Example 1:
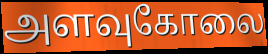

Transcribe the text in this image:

அளவுகோலை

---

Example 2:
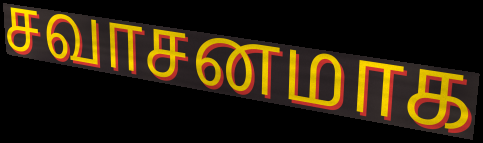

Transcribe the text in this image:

சவாசனமாக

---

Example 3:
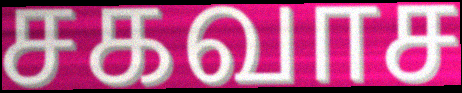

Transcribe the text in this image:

சகவாச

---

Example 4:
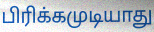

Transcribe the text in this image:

பிரிக்கமுடியாது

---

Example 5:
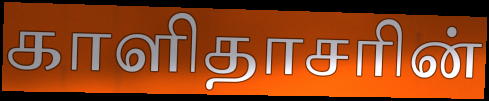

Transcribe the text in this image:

காளிதாசரின்